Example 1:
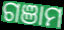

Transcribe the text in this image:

ଗଞାମ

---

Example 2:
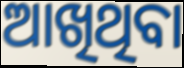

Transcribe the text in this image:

ଆଖିଥିବା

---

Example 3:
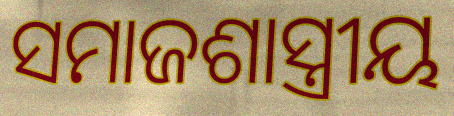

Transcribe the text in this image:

ସମାଜଶାସ୍ତ୍ରୀୟ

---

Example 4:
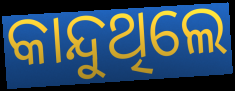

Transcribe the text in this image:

କାନ୍ଦୁଥିଲେ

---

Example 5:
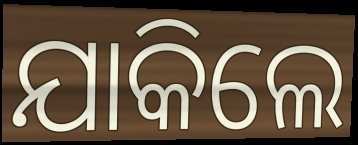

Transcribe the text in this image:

ଯାକିଲେ